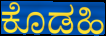
ಕೊಡಹಿ